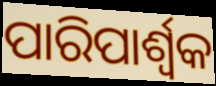
ପାରିପାର୍ଶ୍ଵକ